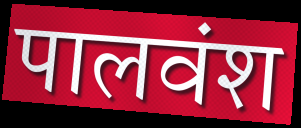
पालवंश